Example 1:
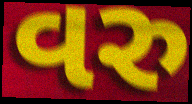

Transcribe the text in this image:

વરુ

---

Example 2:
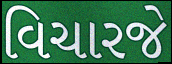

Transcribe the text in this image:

વિચારજે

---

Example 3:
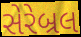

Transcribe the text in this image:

સેરેબ્રલ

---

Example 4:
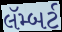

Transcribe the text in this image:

લૅમ્બર્ટ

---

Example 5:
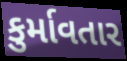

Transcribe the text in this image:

કુર્માવતાર